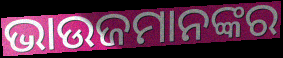
ଭାଉଜମାନଙ୍କର